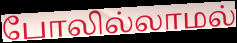
போலில்லாமல்